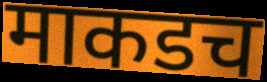
माकडच